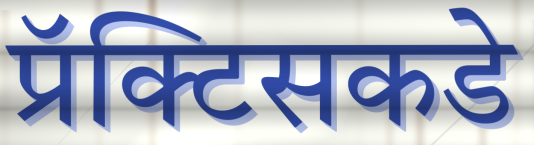
प्रॅक्टिसकडे